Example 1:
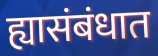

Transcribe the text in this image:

ह्यासंबंधात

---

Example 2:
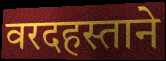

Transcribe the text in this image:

वरदहस्ताने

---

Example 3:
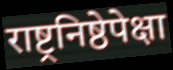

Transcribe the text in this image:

राष्ट्रनिष्ठेपेक्षा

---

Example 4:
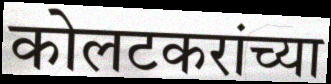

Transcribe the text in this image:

कोलटकरांच्या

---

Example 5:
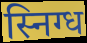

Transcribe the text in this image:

स्‍निग्ध